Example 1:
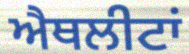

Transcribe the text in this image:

ਐਥਲੀਟਾਂ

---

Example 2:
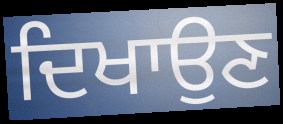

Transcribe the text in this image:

ਦਿਖਾਉਣ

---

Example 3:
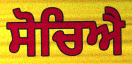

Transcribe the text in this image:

ਸੋਚਿਐ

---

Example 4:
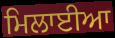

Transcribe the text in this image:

ਮਿਲਾਈਆ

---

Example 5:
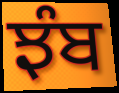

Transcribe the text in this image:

ਝੰਬ